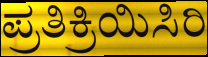
ಪ್ರತಿಕ್ರಿಯಿಸಿರಿ